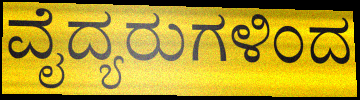
ವೈದ್ಯರುಗಳಿಂದ